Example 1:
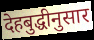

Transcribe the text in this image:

देहबुद्धीनुसार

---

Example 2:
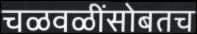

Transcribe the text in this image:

चळवळींसोबतच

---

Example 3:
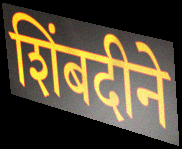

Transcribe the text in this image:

शिंबदीने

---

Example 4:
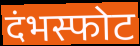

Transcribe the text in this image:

दंभस्फोट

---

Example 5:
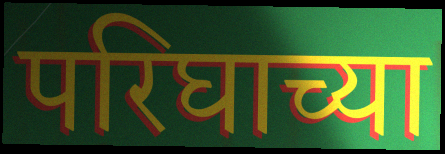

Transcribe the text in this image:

परिघाच्या